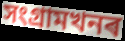
সংগ্ৰামখনৰ